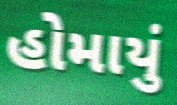
હોમાયું